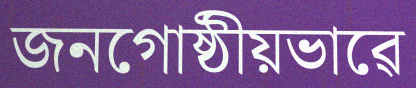
জনগোষ্ঠীয়ভাৱে